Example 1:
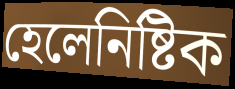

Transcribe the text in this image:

হেলেনিষ্টিক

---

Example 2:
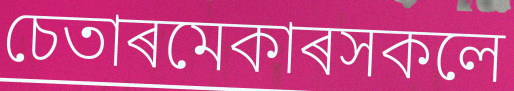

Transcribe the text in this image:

চেতাৰমেকাৰসকলে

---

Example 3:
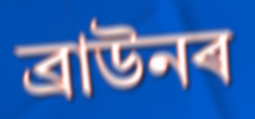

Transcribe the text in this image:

ব্ৰাউনৰ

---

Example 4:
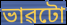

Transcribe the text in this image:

ভাৱটো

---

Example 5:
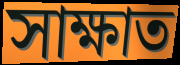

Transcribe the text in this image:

সাক্ষাত